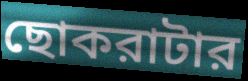
ছোকরাটার